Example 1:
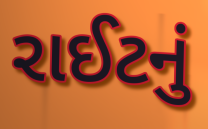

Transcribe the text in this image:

રાઈટનું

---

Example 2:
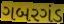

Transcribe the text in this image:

ગબરગંડ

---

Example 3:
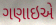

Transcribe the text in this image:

ગણાઇએ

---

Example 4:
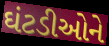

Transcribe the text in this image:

ઘંટડીઓને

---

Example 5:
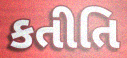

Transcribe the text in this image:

કતીતિ